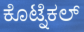
ಕೊಟ್ನೆಕಲ್